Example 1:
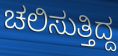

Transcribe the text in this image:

ಚಲಿಸುತ್ತಿದ್ದ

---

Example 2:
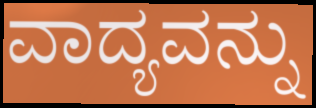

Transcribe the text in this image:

ವಾದ್ಯವನ್ನು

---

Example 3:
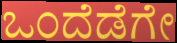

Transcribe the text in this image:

ಒಂದೆಡೆಗೇ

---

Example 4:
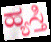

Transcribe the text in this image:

ಹ್ಯಸ್ತಿ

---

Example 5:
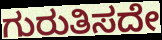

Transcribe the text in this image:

ಗುರುತಿಸದೇ